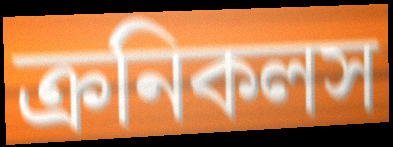
ক্রনিকলস